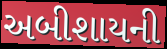
અબીશાયની